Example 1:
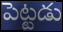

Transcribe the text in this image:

పెట్టడు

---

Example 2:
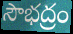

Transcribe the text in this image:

సౌభద్రం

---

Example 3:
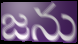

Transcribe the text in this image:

జను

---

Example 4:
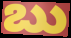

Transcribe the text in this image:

బు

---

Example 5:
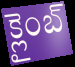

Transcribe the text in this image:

క్లైంబ్